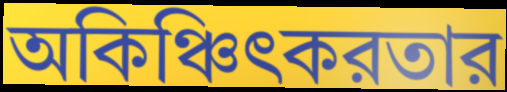
অকিঞ্চিৎকরতার